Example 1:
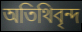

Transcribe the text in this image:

অতিথিবৃন্দ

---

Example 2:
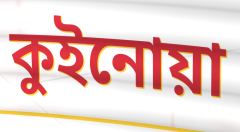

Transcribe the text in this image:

কুইনোয়া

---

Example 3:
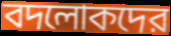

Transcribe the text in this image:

বদলোকদের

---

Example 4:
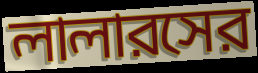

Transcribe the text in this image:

লালারসের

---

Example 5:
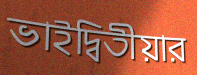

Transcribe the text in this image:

ভাইদ্বিতীয়ার